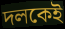
দলকেই